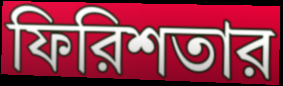
ফিরিশতার